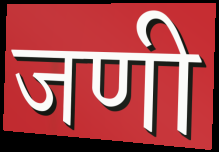
जणी